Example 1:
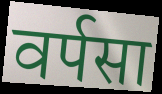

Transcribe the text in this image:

वर्पसा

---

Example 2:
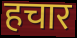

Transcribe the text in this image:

हचार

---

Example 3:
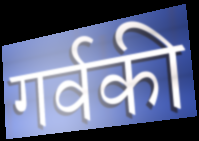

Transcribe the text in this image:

गर्वकी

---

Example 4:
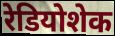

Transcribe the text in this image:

रेडियोशेक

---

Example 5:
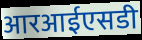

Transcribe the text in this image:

आरआईएसडी